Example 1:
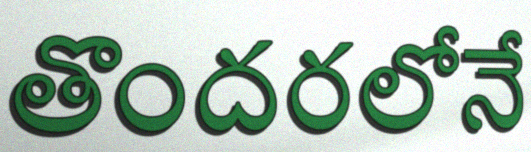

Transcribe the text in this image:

తొందరలోనే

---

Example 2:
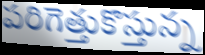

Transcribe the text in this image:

పరిగెత్తుకొస్తున్న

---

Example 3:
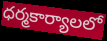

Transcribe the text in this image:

ధర్మకార్యాలలో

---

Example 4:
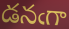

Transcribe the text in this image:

డనఁగా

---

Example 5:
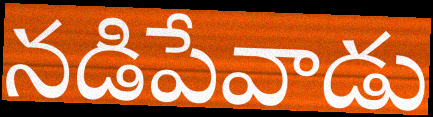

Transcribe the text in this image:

నడిపేవాడు